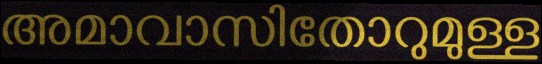
അമാവാസിതോറുമുള്ള